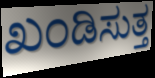
ಖಂಡಿಸುತ್ತ